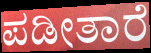
ಪಡೀತಾರೆ